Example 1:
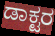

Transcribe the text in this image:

ಡಾಕ್ಟರ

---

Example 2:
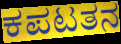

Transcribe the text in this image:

ಕಪಟತನ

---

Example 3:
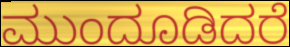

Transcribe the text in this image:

ಮುಂದೂಡಿದರೆ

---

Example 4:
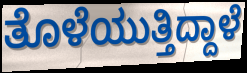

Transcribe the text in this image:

ತೊಳೆಯುತ್ತಿದ್ದಾಳೆ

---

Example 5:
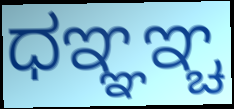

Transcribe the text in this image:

ಧಞ್ಞಞ್ಚ